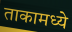
ताकामध्ये